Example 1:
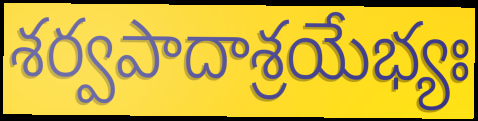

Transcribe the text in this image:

శర్వపాదాశ్రయేభ్యః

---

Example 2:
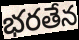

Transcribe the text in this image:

భరతేన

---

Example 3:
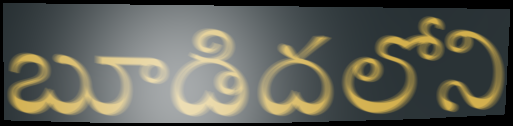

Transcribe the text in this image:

బూడిదలోని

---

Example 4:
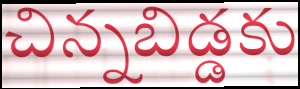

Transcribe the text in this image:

చిన్నబిడ్డకు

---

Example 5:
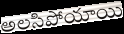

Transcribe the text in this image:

అలసిపోయాయి